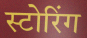
स्टोरिंग